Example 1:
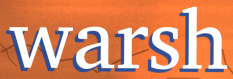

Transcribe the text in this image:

warsh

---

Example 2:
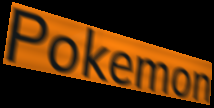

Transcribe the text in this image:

Pokemon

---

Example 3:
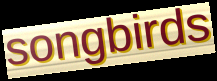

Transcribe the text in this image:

songbirds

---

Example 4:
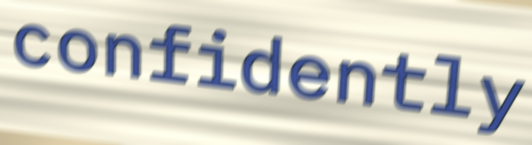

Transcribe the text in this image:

confidently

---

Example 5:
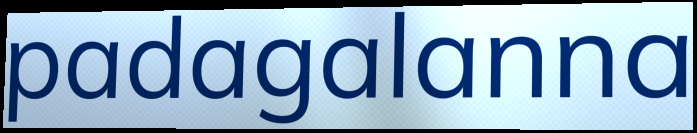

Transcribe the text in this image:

padagalanna